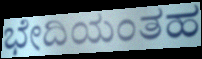
ಭೇದಿಯಂತಹ